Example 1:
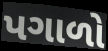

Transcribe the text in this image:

પગાળો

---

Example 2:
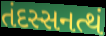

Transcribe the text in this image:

તંદસ્સનત્થં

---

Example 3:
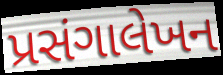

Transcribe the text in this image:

પ્રસંગાલેખન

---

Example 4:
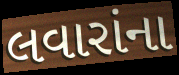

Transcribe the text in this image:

લવારાંના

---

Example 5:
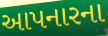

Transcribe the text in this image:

આપનારના